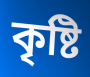
কৃষ্টি